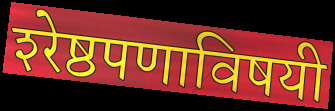
श्रेष्ठपणाविषयी